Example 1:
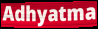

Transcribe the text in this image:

Adhyatma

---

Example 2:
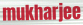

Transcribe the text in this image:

mukharjee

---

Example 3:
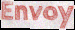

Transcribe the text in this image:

Envoy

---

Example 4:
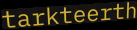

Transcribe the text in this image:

tarkteerth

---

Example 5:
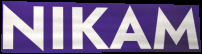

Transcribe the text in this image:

NIKAM